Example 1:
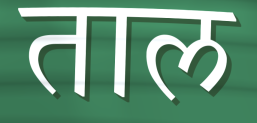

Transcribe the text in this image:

ताल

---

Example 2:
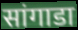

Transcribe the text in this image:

सांगाडा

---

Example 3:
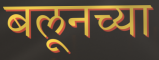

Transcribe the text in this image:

बलूनच्या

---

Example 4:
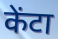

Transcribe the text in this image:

केंटा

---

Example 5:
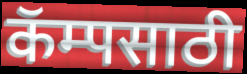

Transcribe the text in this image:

कॅम्पसाठी